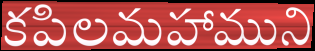
కపిలమహాముని